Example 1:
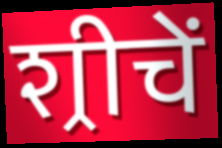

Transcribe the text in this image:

श्रीचें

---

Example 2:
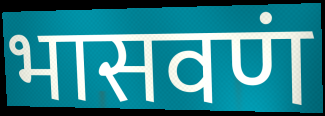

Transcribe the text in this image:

भासवणं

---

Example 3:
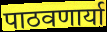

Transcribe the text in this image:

पाठवणार्या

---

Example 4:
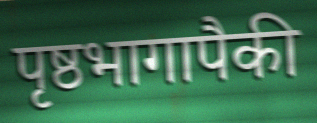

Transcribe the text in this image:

पृष्ठभागापैकी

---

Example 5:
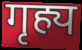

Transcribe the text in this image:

गृह्य